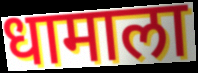
धामाला